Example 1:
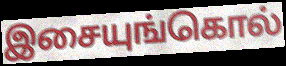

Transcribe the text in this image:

இசையுங்கொல்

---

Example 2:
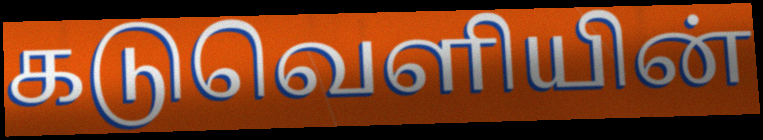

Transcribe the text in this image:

கடுவெளியின்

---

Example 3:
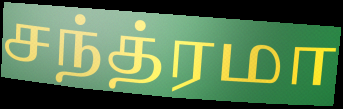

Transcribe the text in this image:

சந்த்ரமா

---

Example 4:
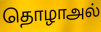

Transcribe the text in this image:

தொழாஅல்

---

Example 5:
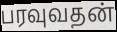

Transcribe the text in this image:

பரவுவதன்